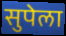
सुपेला